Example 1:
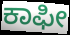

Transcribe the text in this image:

ಕಾಫೀ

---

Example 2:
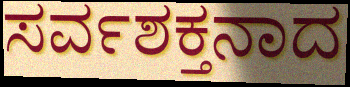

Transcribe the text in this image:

ಸರ್ವಶಕ್ತನಾದ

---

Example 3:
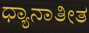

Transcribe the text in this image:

ಧ್ಯಾನಾತೀತ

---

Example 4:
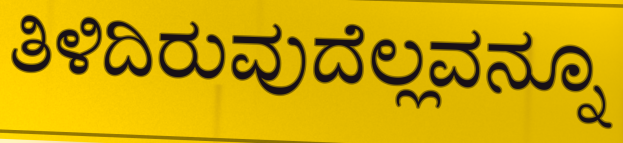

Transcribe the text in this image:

ತಿಳಿದಿರುವುದೆಲ್ಲವನ್ನೂ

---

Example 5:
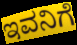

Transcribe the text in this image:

ಇವನಿಗೆ